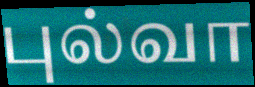
புல்வா